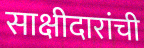
साक्षीदारांची